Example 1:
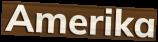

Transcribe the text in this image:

Amerika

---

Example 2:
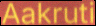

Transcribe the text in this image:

Aakruti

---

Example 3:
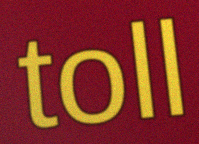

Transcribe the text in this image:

toll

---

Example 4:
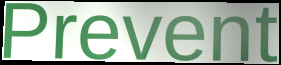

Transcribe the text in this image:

Prevent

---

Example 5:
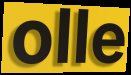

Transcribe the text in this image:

olle